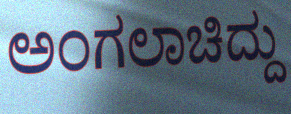
ಅಂಗಲಾಚಿದ್ದು